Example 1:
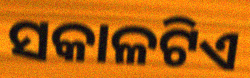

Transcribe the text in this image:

ସକାଳଟିଏ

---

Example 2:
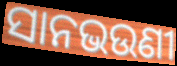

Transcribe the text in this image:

ସାନଭଉଣୀ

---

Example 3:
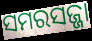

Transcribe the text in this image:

ସମରସଜ୍ଜା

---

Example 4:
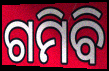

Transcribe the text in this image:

ଗମିବି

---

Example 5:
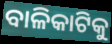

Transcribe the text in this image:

ବାଳିକାଟିକୁ